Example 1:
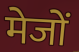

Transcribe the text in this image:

मेजों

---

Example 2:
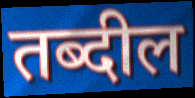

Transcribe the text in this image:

तब्‍दील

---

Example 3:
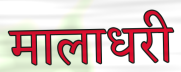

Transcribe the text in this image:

मालाधरी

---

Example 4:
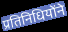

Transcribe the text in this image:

प्रतिनिधियोंने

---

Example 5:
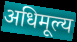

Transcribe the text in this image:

अधिमूल्य